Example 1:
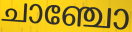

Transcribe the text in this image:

ചാഞ്ചോ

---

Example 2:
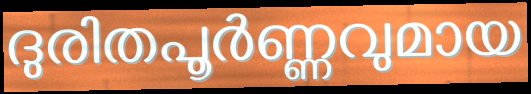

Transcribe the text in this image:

ദുരിതപൂർണ്ണവുമായ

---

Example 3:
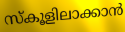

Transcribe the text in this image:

സ്കൂളിലാക്കാൻ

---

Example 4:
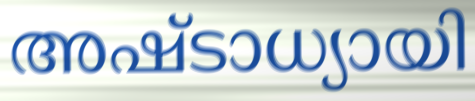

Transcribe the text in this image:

അഷ്ടാധ്യായി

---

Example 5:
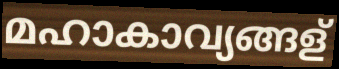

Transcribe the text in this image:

മഹാകാവ്യങ്ങള്